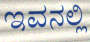
ಇವನಲ್ಲಿ